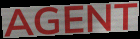
AGENT